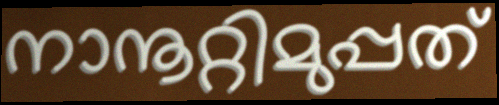
നാനൂറ്റിമുപ്പത്